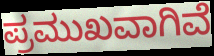
ಪ್ರಮುಖವಾಗಿವೆ